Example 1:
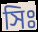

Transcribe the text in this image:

সিঃ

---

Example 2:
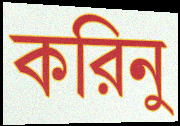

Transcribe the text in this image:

করিনু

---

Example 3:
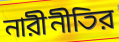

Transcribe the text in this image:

নারীনীতির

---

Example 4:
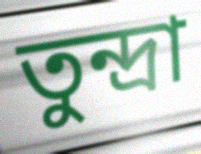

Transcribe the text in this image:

তুন্দ্রা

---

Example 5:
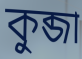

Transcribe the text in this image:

কুব্জা